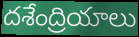
దశేంద్రియాలు